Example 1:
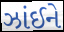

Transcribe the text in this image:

ઝાંઈને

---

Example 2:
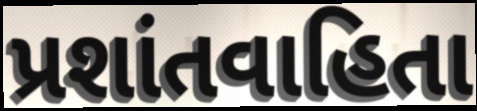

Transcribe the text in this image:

પ્રશાંતવાહિતા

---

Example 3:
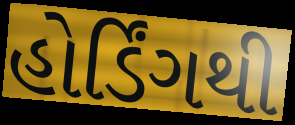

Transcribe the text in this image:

હોર્ડિંગથી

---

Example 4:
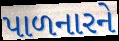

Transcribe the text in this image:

પાળનારને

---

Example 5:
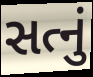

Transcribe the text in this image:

સત્નું